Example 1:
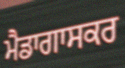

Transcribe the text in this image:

ਮੈਡਾਗਾਸਕਰ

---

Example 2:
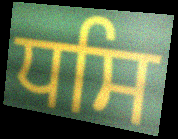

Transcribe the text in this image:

ਧਸਿ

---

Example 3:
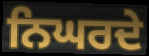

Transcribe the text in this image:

ਨਿਘਰਦੇ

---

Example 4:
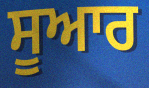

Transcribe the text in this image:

ਸੂਆਰ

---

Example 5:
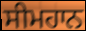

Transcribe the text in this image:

ਸੀਮਹਾਨ